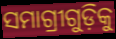
ସମାଗ୍ରୀଗୁଡ଼ିକୁ